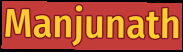
Manjunath